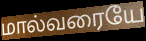
மால்வரையே